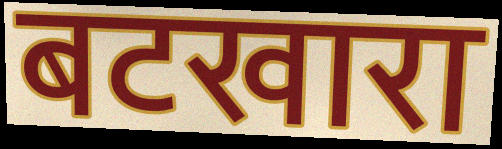
बटखारा